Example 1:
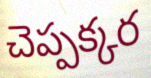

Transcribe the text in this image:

చెప్పక్కర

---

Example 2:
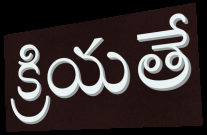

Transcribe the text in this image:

క్రియతే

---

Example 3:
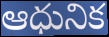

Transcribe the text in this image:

ఆధునిక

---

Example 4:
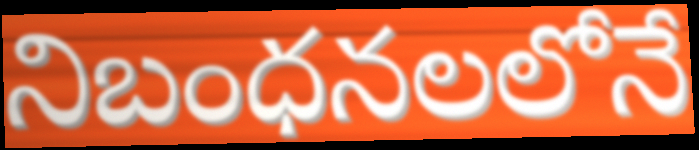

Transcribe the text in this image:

నిబంధనలలోనే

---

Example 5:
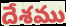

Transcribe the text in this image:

దేశము